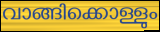
വാങ്ങിക്കൊള്ളും